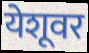
येशूवर